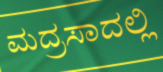
ಮದ್ರಸಾದಲ್ಲಿ